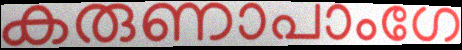
കരുണാപാംഗേ